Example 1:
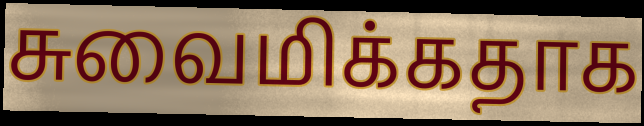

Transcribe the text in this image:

சுவைமிக்கதாக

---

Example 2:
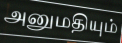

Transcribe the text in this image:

அனுமதியும்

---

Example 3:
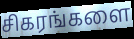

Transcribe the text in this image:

சிகரங்களை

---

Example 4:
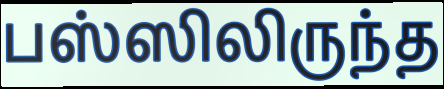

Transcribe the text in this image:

பஸ்ஸிலிருந்த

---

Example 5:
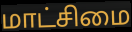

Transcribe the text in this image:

மாட்சிமை